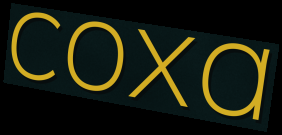
coxa